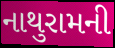
નાથુરામની